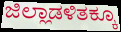
ಜಿಲ್ಲಾಡಳಿತಕ್ಕೂ